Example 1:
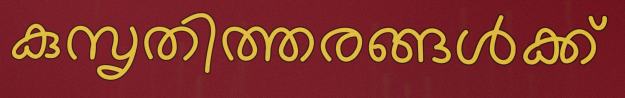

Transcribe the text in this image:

കുസൃതിത്തരങ്ങൾക്ക്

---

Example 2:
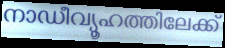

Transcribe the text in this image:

നാഡീവ്യൂഹത്തിലേക്ക്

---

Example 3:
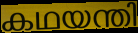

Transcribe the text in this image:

കഥയന്തി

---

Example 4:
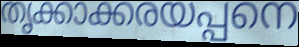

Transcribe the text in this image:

തൃക്കാക്കരയപ്പനെ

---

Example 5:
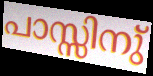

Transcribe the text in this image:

പാസ്സിനു്